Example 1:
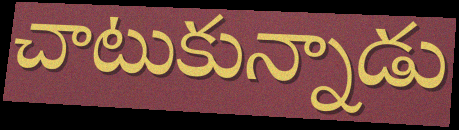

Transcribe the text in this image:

చాటుకున్నాడు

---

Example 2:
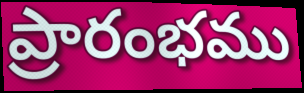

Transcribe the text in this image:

ప్రారంభము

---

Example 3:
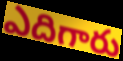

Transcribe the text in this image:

ఎదిగారు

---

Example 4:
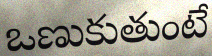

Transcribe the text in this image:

ఒణుకుతుంటే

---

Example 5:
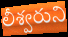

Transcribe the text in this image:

లీశ్వరుని